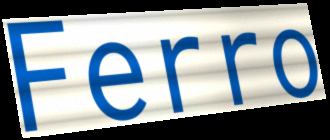
Ferro